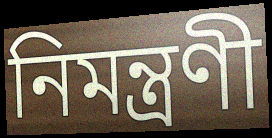
নিমন্ত্ৰণী